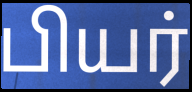
பியர்